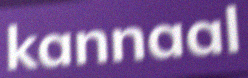
kannaal